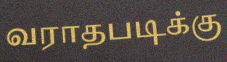
வராதபடிக்கு